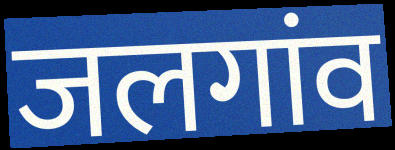
जलगांव